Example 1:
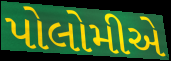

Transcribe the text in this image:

પોલોમીએ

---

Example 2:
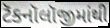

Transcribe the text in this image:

ટૅકનૉલૉજીમાંથી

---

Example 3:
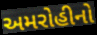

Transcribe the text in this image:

અમરોહીનો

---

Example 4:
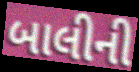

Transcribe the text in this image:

બાલીની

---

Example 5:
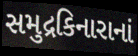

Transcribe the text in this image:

સમુદ્રકિનારાનાં